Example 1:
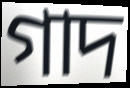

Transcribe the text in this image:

গাদ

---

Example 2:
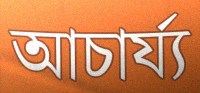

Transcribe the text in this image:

আচাৰ্য্য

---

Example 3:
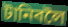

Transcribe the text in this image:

টানিবলৈ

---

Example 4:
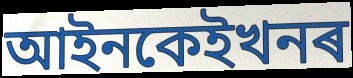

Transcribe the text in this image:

আইনকেইখনৰ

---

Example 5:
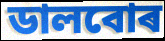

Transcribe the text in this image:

ডালবোৰ